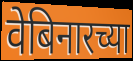
वेबिनारच्या